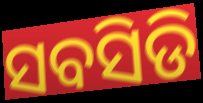
ସବସିଡି